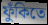
ফুঁকিতে